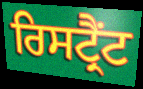
ਰਿਸਟ੍ਰੈਂਟ